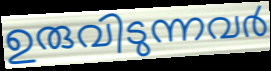
ഉരുവിടുന്നവർ